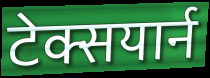
टेक्सयार्न